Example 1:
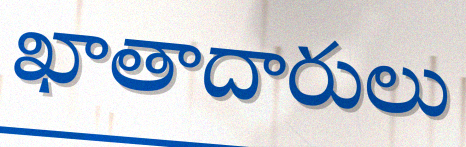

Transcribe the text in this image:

ఖాతాదారులు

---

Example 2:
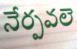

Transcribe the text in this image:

నేర్పవలె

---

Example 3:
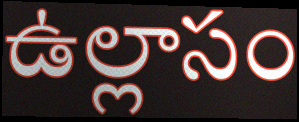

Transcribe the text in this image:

ఉల్లాసం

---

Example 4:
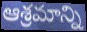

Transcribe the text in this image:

ఆశ్రమాన్ని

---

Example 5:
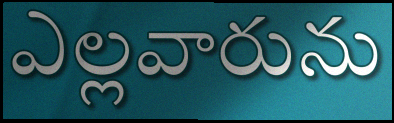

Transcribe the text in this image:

ఎల్లవారును